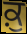
ਕ਼ੁ